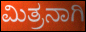
ಮಿತ್ರನಾಗಿ